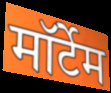
मॉर्टेम